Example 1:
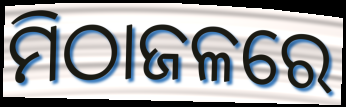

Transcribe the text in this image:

ମିଠାଜଳରେ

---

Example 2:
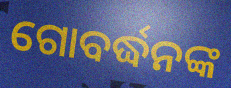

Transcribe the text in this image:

ଗୋବର୍ଦ୍ଧନଙ୍କ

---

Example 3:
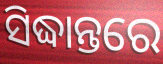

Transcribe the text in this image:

ସିଦ୍ଧାନ୍ତରେ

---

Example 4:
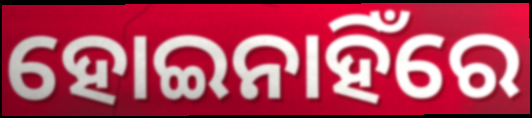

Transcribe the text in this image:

ହୋଇନାହିଁରେ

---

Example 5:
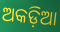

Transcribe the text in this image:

ଅକଡ଼ିଆ